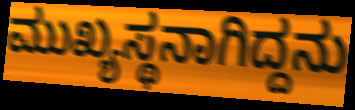
ಮುಖ್ಯಸ್ಥನಾಗಿದ್ದನು